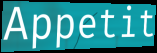
Appetit